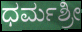
ಧರ್ಮಶ್ರೀ